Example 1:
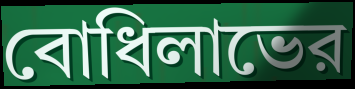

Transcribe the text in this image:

বোধিলাভের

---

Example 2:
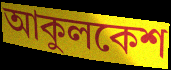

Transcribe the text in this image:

আকুলকেশ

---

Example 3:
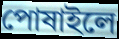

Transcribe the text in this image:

পোষাইলে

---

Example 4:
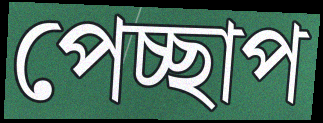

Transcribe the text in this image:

পেচ্ছাপ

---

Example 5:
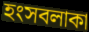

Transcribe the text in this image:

হংসবলাকা